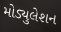
મોડ્યુલેશન